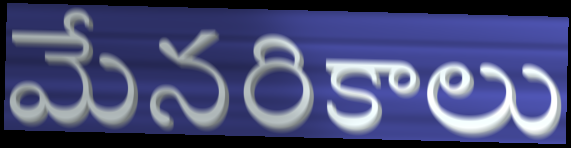
మేనరికాలు